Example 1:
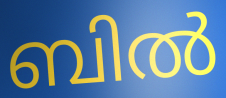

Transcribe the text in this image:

ബിൽ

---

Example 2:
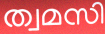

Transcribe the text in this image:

ത്വമസി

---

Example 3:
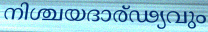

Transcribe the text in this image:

നിശ്ചയദാര്ഢ്യവും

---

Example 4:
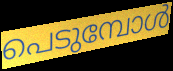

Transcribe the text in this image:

പെടുമ്പോൾ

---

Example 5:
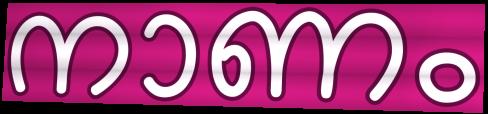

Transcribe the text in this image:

നാണം